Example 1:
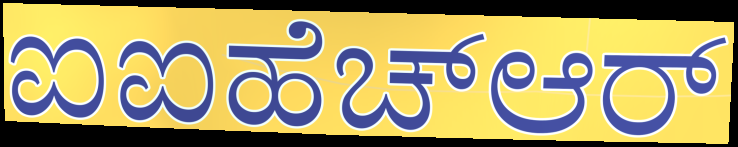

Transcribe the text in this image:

ಐಐಹೆಚ್ಆರ್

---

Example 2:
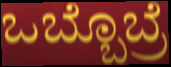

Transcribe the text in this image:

ಒಬ್ಬೊಬ್ರೆ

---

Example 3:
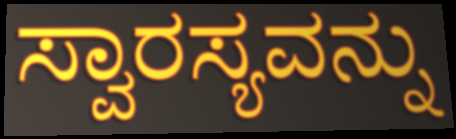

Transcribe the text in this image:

ಸ್ವಾರಸ್ಯವನ್ನು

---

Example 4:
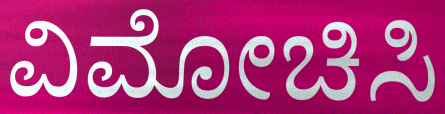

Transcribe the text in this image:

ವಿಮೋಚಿಸಿ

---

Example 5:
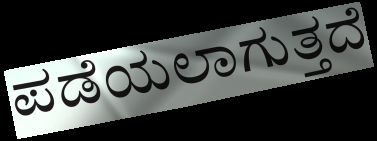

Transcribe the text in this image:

ಪಡೆಯಲಾಗುತ್ತದೆ